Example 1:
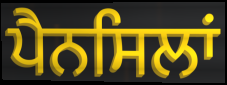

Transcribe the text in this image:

ਪੈਨਸਿਲਾਂ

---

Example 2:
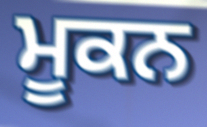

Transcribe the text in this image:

ਮੂਕਨ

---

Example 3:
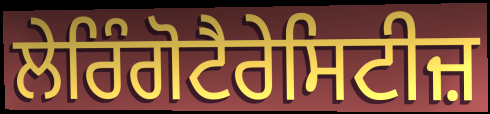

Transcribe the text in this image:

ਲੇਰਿੰਗੋਟੈਰੇਸਿਟੀਜ਼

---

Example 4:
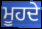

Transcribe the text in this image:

ਮੂਹਦੇ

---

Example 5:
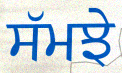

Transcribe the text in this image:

ਸੱਮਝੇ